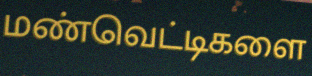
மண்வெட்டிகளை